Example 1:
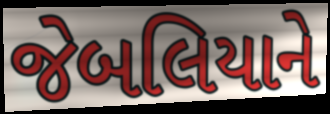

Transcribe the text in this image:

જેબલિયાને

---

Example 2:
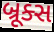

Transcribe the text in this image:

બ્રૂક્સ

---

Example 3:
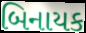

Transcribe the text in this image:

બિનાયક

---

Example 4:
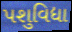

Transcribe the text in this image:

પશુવિદ્યા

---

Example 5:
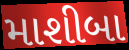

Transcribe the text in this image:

માશીબા